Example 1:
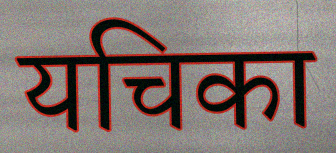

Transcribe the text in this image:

यचिका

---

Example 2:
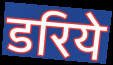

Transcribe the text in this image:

डरिये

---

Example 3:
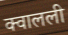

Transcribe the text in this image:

क्वालली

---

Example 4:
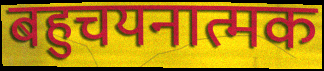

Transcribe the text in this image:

बहुचयनात्मक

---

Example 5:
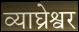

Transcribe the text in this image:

व्याघ्रेश्वर